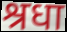
श्रधा